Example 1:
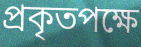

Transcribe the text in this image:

প্রকৃতপক্ষে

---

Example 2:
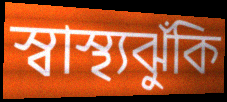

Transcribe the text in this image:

স্বাস্থ্যঝুঁকি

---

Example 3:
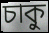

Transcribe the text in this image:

চাকু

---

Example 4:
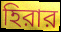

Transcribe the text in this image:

হিরার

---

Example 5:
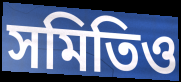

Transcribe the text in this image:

সমিতিও